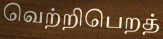
வெற்றிபெறத்